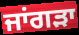
ਜਾਂਗੜਾ